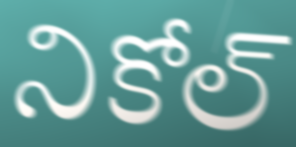
నికోల్